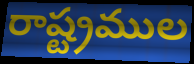
రాష్ట్రముల